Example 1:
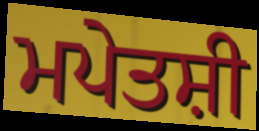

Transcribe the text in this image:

ਮਪੇਤਸ਼ੀ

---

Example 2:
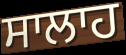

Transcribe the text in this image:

ਸਾਲਾਹ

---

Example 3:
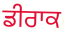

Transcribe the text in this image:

ਡੀਰਾਕ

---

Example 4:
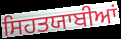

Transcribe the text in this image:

ਸਿਹਤਯਾਬੀਆਂ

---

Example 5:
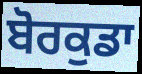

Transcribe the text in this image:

ਬੋਰਕੁਡਾ